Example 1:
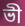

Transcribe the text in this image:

ভী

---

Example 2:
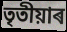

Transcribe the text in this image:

তৃতীয়াৰ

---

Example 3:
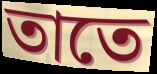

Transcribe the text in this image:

তাতে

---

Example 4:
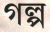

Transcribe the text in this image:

গল্প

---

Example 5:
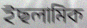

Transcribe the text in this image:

ইছলামিক